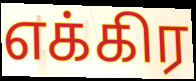
எக்கிர